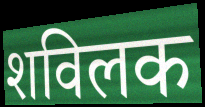
शविलक